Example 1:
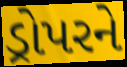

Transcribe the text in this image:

ડ્રોપરને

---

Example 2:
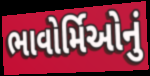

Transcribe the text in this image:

ભાવોર્મિઓનું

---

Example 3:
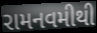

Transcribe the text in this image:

રામનવમીથી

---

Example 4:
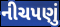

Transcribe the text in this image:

નીચપણું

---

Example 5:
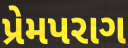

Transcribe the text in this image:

પ્રેમપરાગ